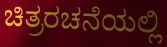
ಚಿತ್ರರಚನೆಯಲ್ಲಿ